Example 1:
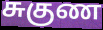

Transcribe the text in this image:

சுகுண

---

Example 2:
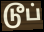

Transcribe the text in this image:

டூப்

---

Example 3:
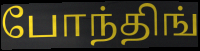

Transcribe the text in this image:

போந்திங்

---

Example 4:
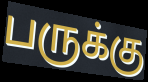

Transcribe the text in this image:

பருக்கு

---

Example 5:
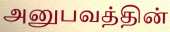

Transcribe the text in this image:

அனுபவத்தின்